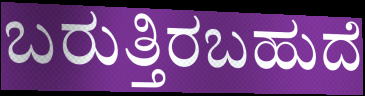
ಬರುತ್ತಿರಬಹುದೆ